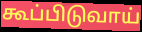
கூப்பிடுவாய்